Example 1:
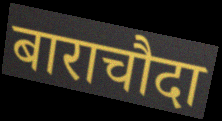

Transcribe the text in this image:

बाराचौदा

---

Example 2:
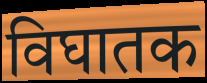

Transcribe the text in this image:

विघातक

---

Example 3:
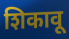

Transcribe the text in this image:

शिकावू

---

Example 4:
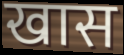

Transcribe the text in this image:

खास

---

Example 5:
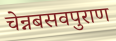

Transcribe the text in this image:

चेन्नबसवपुराण